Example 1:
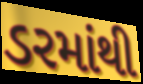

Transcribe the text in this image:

ડરમાંથી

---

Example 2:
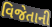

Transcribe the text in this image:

વિજેતાની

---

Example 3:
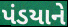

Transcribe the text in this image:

પંડયાને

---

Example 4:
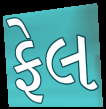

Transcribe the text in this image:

ફેલ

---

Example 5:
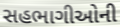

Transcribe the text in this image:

સહભાગીઓની